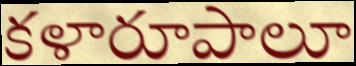
కళారూపాలూ